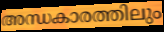
അന്ധകാരത്തിലും